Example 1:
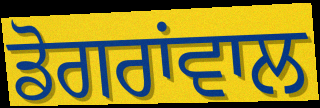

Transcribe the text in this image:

ਡੋਗਰਾਂਵਾਲ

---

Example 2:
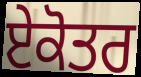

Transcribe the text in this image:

ਏਕੋਤਰ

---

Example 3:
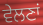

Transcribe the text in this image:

ਵੇਲਣਾਂ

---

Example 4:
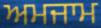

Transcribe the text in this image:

ਅਮਜਾਮ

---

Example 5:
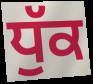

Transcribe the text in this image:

ਧੁੱਕ